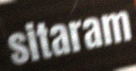
sitaram